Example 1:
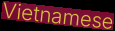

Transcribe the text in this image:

Vietnamese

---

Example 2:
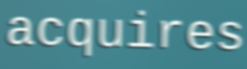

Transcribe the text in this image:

acquires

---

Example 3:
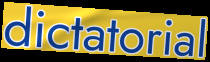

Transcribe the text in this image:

dictatorial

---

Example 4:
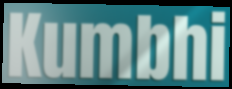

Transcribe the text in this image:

Kumbhi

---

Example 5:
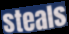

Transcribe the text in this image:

steals